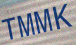
TMMK